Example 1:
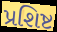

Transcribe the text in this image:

પ્રશિષ્ટ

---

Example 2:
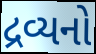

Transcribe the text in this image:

દ્રવ્યનો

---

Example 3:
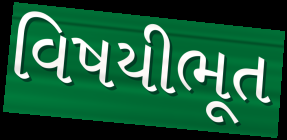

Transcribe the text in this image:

વિષયીભૂત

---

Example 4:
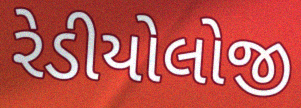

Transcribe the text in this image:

રેડીયોલોજી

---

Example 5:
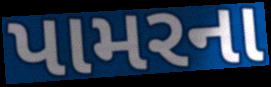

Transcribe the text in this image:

પામરના